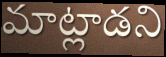
మాట్లాడని